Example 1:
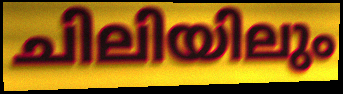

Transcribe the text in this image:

ചിലിയിലും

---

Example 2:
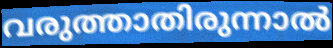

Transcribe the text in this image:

വരുത്താതിരുന്നാൽ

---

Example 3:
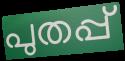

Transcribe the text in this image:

പുതപ്പ്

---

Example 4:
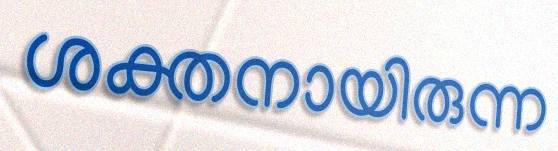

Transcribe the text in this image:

ശക്തനായിരുന്ന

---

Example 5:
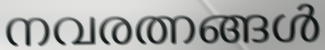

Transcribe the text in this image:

നവരത്നങ്ങൾ